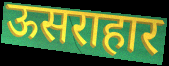
ऊसराहार